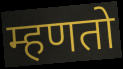
म्हणतो